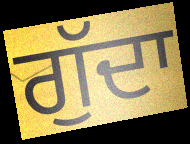
ਗੁੱਦਾ